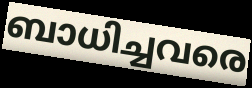
ബാധിച്ചവരെ